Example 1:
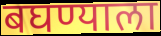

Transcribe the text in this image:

बघण्याला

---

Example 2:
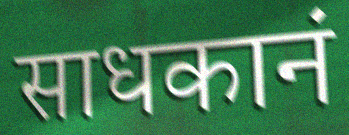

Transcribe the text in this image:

साधकानं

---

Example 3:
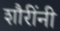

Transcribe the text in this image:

शौरींनी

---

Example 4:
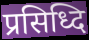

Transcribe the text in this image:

प्रसिध्दि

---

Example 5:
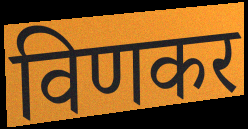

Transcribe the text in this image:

विणकर